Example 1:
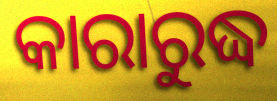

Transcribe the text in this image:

କାରାରୁଦ୍ଧ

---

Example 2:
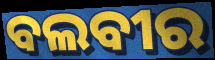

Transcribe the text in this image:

ବଲବୀର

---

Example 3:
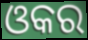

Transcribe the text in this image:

ଓକର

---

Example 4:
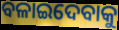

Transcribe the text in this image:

ବଳାଇଦେବାକୁ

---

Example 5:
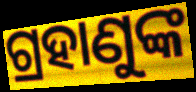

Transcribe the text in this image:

ଗ୍ରହାଣୁଙ୍କ